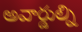
అవార్డుల్ని